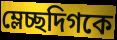
ম্লেচ্ছদিগকে